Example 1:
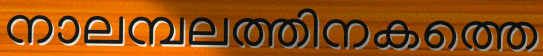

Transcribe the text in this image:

നാലമ്പലത്തിനകത്തെ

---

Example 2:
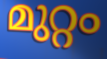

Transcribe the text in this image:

മുറ്റം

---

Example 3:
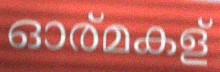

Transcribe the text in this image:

ഓര്മകള്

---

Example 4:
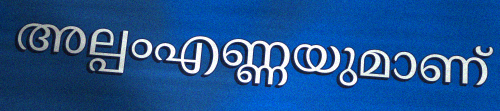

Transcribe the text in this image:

അല്പംഎണ്ണയുമാണ്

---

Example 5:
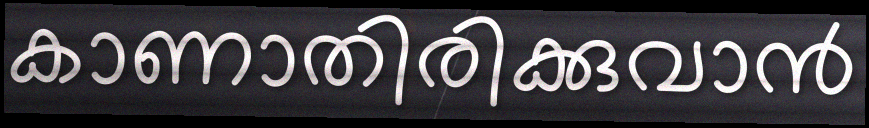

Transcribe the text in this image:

കാണാതിരിക്കുവാൻ